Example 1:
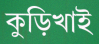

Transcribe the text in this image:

কুড়িখাই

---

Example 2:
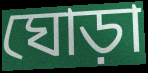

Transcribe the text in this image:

ঘোড়া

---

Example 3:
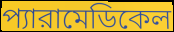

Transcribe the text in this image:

প্যারামেডিকেল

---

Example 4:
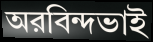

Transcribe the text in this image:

অরবিন্দভাই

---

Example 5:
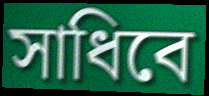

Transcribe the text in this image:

সাধিবে